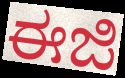
ಈಜಿ